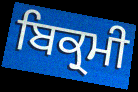
ਬਿਕ੍ਰਮੀ